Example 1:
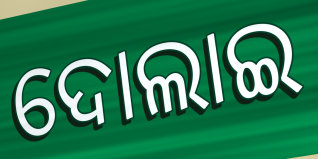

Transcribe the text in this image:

ଦୋଲାଇ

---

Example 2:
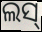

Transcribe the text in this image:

ଲସ୍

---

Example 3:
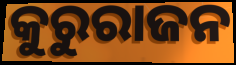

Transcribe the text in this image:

କୁରୁରାଜନ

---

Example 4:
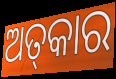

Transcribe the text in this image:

ଅତ୍‌କାର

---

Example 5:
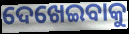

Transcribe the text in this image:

ଦେଖେଇବାକୁ